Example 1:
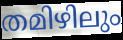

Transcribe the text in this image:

തമിഴിലും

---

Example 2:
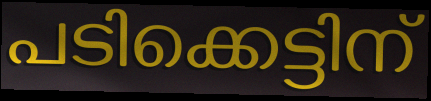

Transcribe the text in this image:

പടിക്കെട്ടിന്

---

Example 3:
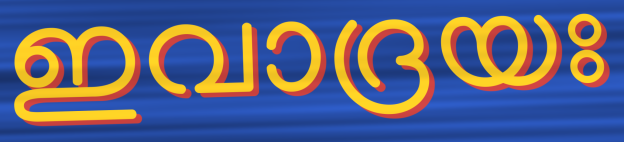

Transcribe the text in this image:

ഇവാദ്രയഃ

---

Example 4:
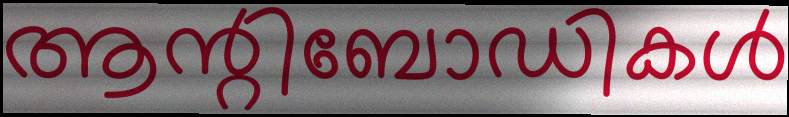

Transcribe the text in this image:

ആന്റിബോഡികൾ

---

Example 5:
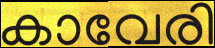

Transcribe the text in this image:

കാവേരി